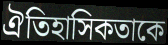
ঐতিহাসিকতাকে